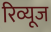
रिव्यूज